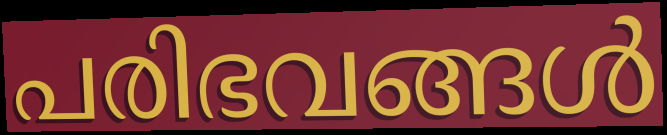
പരിഭവങ്ങൾ